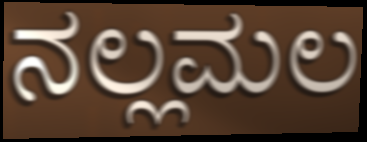
ನಲ್ಲಮಲ